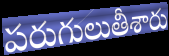
పరుగులుతీశారు